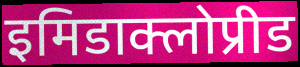
इमिडाक्लोप्रीड